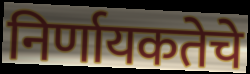
निर्णायकतेचे